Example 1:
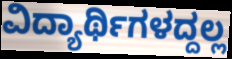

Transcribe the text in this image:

ವಿದ್ಯಾರ್ಥಿಗಳದ್ದಲ್ಲ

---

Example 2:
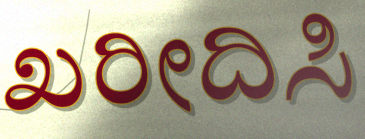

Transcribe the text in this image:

ಖರೀದಿಸಿ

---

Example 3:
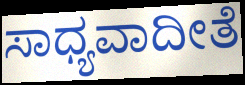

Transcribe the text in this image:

ಸಾಧ್ಯವಾದೀತೆ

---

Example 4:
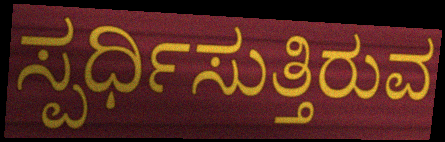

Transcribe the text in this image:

ಸ್ಪರ್ಧಿಸುತ್ತಿರುವ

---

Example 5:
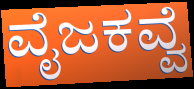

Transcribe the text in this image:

ವೈಜಕವ್ವೆ